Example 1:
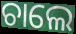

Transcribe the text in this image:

ଚାଲେ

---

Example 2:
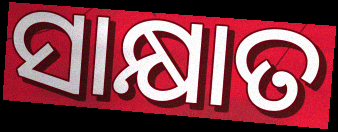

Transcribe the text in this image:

ସାକ୍ଷାତ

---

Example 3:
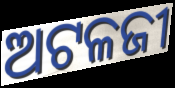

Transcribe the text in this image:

ଅଟଳଜୀ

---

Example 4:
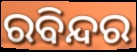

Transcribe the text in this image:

ରବିନ୍ଦର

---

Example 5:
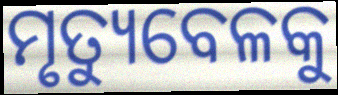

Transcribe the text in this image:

ମୃତ୍ୟୁବେଳକୁ